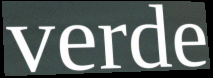
verde